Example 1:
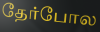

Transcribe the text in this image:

தேர்போல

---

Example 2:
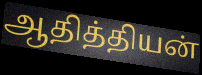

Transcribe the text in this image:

ஆதித்தியன்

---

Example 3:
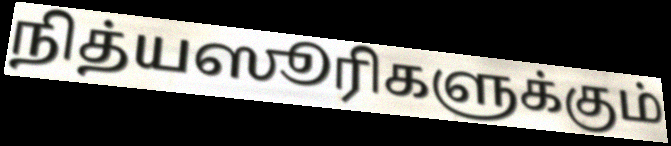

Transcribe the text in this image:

நித்யஸூரிகளுக்கும்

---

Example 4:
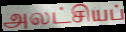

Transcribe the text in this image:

அலட்சியப்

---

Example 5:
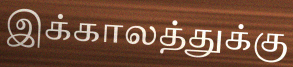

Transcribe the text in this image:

இக்காலத்துக்கு